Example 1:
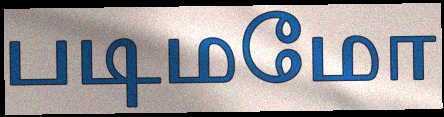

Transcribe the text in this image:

படிமமோ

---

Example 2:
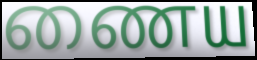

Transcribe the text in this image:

ணைய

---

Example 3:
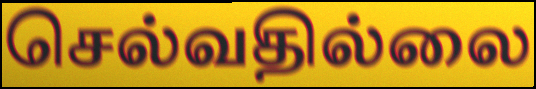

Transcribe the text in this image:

செல்வதில்லை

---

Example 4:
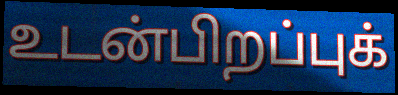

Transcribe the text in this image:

உடன்பிறப்புக்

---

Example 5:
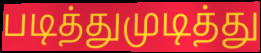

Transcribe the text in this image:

படித்துமுடித்து